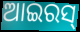
ଆଇରସ୍